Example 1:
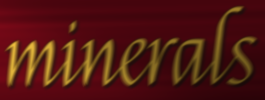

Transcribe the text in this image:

minerals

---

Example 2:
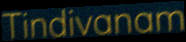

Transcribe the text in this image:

Tindivanam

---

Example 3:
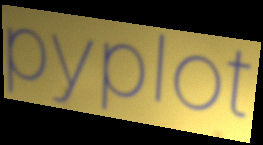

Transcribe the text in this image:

pyplot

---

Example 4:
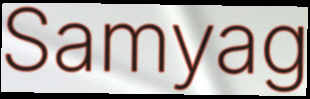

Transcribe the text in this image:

Samyag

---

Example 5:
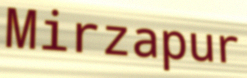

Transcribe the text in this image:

Mirzapur